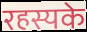
रहस्यके